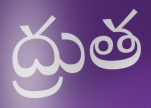
ద్రుత